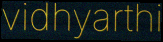
vidhyarthi